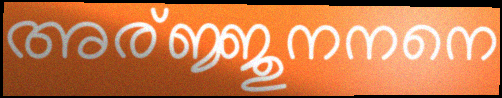
അര്ജ്ജുനനനെ